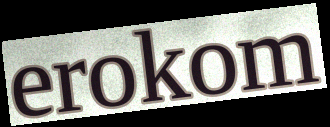
erokom